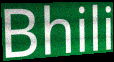
Bhili